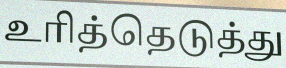
உரித்தெடுத்து